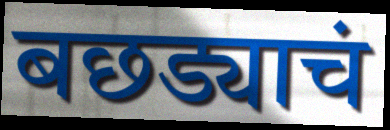
बछड्याचं